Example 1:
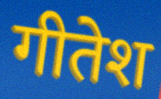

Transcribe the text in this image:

गीतेश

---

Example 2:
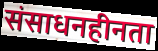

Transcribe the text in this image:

संसाधनहीनता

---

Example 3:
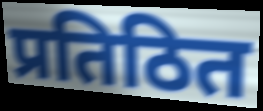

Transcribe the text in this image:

प्रतिठित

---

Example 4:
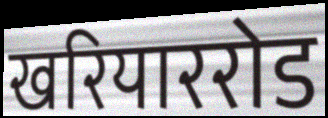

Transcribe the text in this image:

खरियाररोड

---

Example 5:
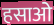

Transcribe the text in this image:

हसाओ